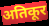
अतिकूर